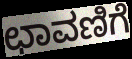
ಛಾವಣಿಗೆ